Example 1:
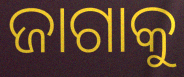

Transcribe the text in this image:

ଜାଗାକୁ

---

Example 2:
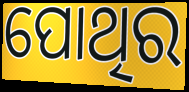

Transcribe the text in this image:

ପୋଥିର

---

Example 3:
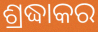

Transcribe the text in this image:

ଶ୍ରଦ୍ଧାକର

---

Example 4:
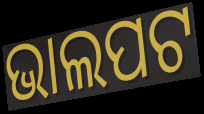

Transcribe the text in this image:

ଭାଲପଟ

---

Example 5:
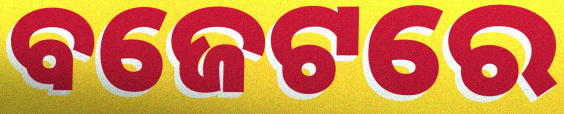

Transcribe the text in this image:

ବଜେଟରେ